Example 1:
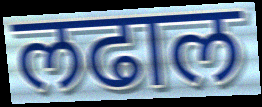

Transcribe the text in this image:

लढाल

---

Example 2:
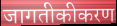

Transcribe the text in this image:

जागतीकीकरण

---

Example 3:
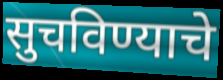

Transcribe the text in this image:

सुचविण्याचे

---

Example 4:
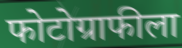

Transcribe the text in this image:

फोटोग्राफीला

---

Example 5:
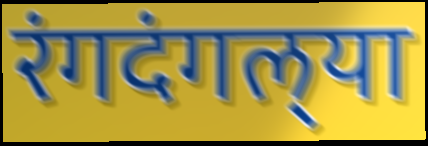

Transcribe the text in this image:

रंगदंगल्या